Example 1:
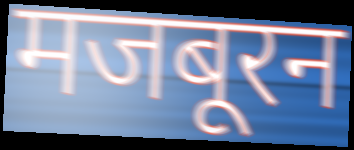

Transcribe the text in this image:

मजबूरन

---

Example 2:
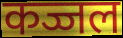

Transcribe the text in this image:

कज्जल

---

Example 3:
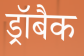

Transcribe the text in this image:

ड्रॉबैक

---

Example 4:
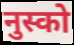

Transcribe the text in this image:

नुस्को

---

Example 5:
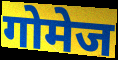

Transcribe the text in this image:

गोमेज